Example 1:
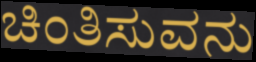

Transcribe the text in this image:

ಚಿಂತಿಸುವನು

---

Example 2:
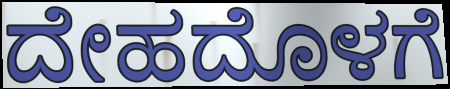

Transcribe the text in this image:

ದೇಹದೊಳಗೆ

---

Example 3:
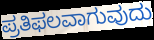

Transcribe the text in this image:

ಪ್ರತಿಫಲವಾಗುವುದು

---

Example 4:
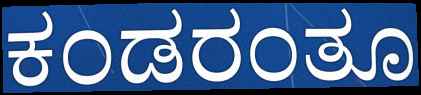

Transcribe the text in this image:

ಕಂಡರಂತೂ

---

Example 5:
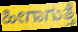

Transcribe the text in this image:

ಹೀಗಾಗುತ್ತೆ